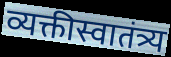
व्यक्तीस्वातंत्र्य